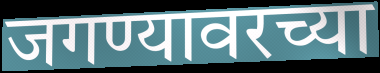
जगण्यावरच्या